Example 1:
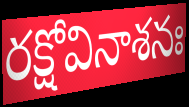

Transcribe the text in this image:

రక్షోవినాశనః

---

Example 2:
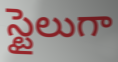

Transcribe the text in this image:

స్టైలుగా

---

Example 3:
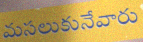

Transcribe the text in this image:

మసలుకునేవారు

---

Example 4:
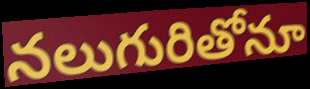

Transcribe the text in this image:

నలుగురితోనూ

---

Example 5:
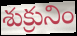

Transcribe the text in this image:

శుక్రునిం